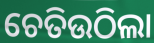
ଚେତିଉଠିଲା